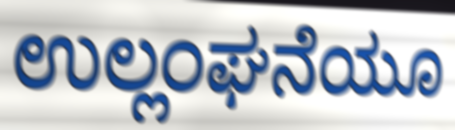
ಉಲ್ಲಂಘನೆಯೂ